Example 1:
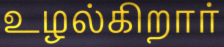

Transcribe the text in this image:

உழல்கிறார்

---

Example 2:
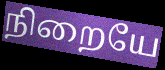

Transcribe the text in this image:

நிறையே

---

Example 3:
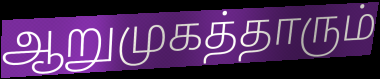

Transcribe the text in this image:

ஆறுமுகத்தாரும்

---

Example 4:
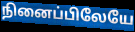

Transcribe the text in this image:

நினைப்பிலேயே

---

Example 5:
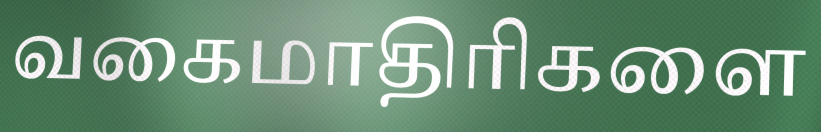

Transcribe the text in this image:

வகைமாதிரிகளை